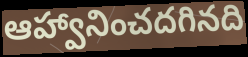
ఆహ్వానించదగినది